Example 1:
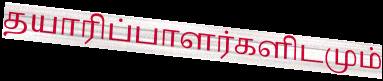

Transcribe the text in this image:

தயாரிப்பாளர்களிடமும்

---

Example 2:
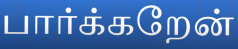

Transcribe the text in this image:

பார்க்கறேன்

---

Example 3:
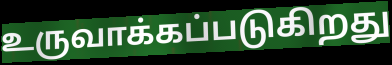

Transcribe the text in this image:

உருவாக்கப்படுகிறது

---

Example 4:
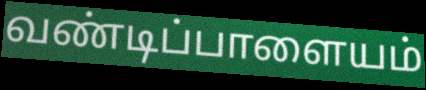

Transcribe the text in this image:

வண்டிப்பாளையம்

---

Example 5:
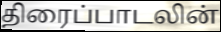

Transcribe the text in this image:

திரைப்பாடலின்